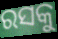
ରସକୁ